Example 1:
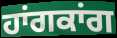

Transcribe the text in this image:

ਹਾਂਗਕਾਂਗ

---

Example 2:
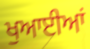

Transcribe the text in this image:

ਖੁਆਈਆਂ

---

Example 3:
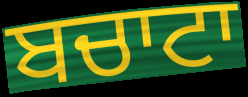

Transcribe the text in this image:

ਬਚਾਟਾ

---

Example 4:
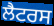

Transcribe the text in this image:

ਲੈਟਰਸ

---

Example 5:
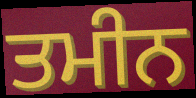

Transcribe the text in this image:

ਤਮੀਨ